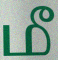
மீ